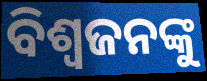
ବିଶ୍ୱଜନଙ୍କୁ